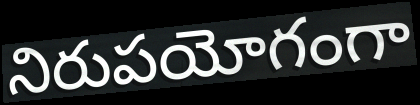
నిరుపయోగంగా